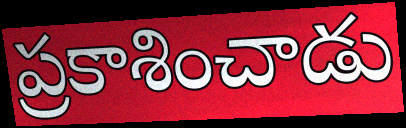
ప్రకాశించాడు